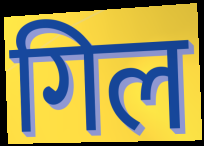
गिल